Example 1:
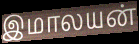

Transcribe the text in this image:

இமாலயன்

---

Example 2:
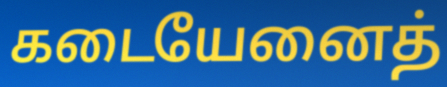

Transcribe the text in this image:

கடையேனைத்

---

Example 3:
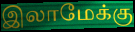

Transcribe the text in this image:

இலாமேக்கு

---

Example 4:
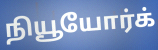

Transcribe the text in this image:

நியூயோர்க்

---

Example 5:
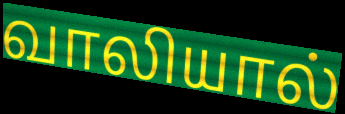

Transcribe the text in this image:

வாலியால்